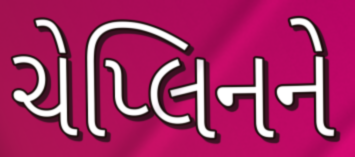
ચેપ્લિનને